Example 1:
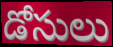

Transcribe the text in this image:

డోసులు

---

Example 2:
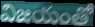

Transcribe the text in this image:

విజయంతో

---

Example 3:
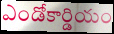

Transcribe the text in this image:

ఎండోకార్డియం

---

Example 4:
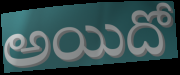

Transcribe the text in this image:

అయిదో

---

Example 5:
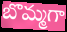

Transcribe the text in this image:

బొమ్మగా